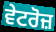
ਵੇਟਰੋਜ਼